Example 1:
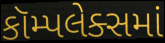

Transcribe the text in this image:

કૉમ્પલેક્સમાં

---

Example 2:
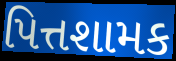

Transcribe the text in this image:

પિત્તશામક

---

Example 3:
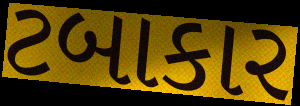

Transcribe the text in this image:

ટબાકાર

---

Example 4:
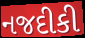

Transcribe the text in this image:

નજદીકી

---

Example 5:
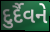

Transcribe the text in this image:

દુર્દૈવને